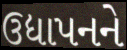
ઉદ્યાપનને